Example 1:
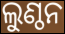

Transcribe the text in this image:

ଲୁଣ୍ଠନ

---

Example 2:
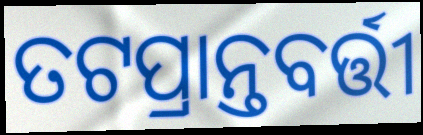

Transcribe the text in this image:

ତଟପ୍ରାନ୍ତବର୍ତ୍ତୀ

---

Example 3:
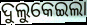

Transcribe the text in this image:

ଦୁଲୁକେଇଲା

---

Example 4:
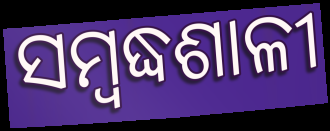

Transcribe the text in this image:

ସମ୍ବଦ୍ଧଶାଳୀ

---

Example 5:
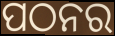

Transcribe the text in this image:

ପଠନର